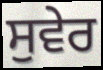
ਸੁਵੇਰ